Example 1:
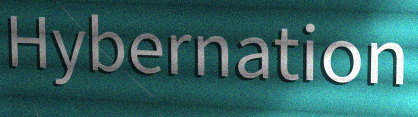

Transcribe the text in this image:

Hybernation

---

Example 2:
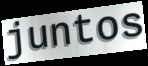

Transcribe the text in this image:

juntos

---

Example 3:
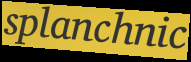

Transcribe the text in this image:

splanchnic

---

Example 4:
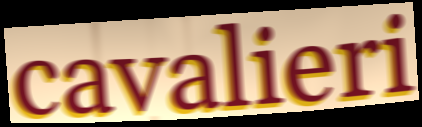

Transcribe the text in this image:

cavalieri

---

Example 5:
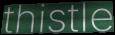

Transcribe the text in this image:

thistle